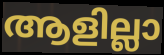
ആളില്ലാ